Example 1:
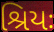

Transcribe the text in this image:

શ્રિયઃ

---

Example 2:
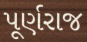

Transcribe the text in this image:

પૂર્ણરાજ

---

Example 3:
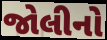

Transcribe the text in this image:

જોલીનો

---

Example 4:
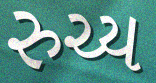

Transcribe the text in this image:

રુચ્ય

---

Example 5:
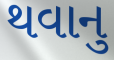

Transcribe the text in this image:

થવાનુ